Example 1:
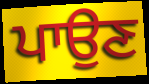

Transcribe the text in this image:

ਪਾਉਣ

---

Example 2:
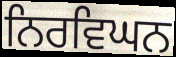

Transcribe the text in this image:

ਨਿਰਵਿਘਨ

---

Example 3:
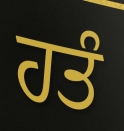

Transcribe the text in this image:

ਹਤੰ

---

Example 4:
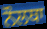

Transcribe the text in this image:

ਨੌਲਥਾ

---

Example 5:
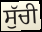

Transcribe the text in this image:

ਸੁੱਚੀ